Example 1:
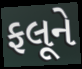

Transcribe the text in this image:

ફલૂને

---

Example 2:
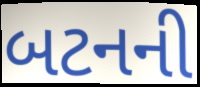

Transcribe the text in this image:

બટનની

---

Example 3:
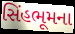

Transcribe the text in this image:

સિંહભૂમના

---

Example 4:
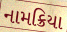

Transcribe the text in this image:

નામક્રિયા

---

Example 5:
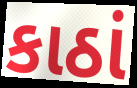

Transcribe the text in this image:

કાઠાં